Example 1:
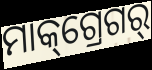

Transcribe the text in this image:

ମାକ୍‌ଗ୍ରେଗର୍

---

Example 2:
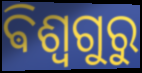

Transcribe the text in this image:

ଵିଶ୍ଵଗୁରୁ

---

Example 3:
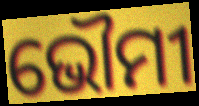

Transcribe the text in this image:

ଭୌମୀ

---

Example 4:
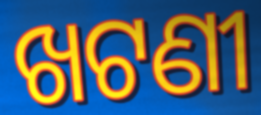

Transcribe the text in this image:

ଖଟଣୀ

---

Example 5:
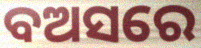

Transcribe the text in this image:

ବଅସରେ